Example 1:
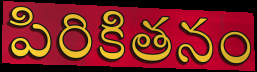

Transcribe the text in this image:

పిరికితనం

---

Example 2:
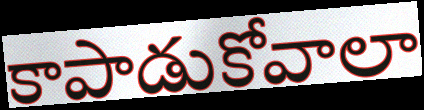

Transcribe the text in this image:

కాపాడుకోవాలా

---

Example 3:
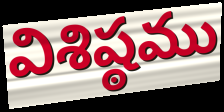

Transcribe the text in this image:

విశిష్ఠము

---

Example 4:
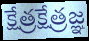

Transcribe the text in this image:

క్షేత్రక్షేత్రజ్ఞ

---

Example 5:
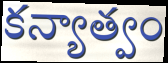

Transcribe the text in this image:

కన్యాత్వం